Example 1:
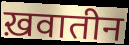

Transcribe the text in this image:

ख़वातीन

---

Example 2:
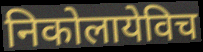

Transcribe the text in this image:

निकोलायेविच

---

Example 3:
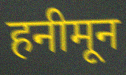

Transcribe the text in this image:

हनीमून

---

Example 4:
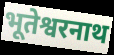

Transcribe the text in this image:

भूतेश्वरनाथ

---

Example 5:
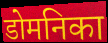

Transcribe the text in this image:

डोमनिका